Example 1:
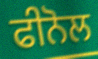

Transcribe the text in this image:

ਫੀਨੋਲ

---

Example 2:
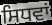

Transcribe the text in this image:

ਸਿਧਵਾਂ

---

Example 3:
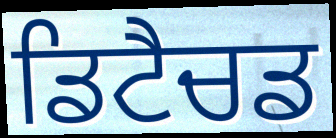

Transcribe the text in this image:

ਡਿਟੈਚਡ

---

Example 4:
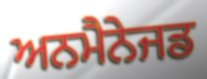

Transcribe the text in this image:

ਅਨਮੈਨੇਜਡ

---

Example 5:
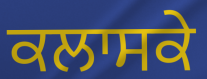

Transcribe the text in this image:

ਕਲਾਸਕੇ